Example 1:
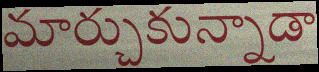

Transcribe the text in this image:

మార్చుకున్నాడా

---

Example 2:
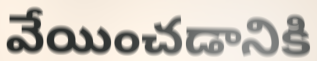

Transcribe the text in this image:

వేయించడానికి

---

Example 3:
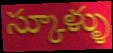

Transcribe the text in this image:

స్కూళ్ళు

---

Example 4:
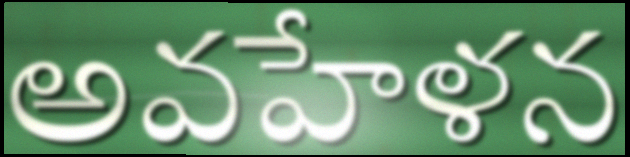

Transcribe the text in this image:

అవహేళన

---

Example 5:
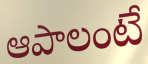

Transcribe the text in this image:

ఆపాలంటే